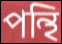
পন্থি